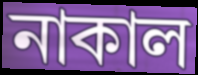
নাকাল